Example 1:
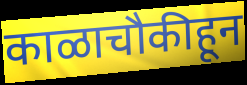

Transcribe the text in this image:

काळाचौकीहून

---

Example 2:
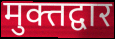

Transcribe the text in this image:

मुक्तद्वार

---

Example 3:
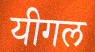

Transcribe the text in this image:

यीगल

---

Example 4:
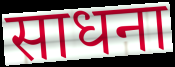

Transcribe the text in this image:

साधना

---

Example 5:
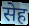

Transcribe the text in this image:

सेह